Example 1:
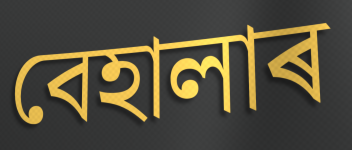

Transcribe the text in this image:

বেহালাৰ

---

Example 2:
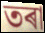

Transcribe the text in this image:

তৰা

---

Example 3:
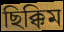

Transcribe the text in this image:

ছিক্কিম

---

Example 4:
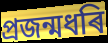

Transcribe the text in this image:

প্ৰজন্মধৰি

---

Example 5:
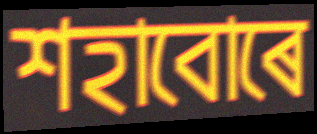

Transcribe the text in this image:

শহাবোৰে